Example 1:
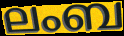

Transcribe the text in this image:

ലംബ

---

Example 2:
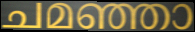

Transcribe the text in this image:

ചമഞ്ഞാ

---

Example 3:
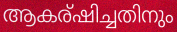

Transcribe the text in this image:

ആകര്ഷിച്ചതിനും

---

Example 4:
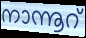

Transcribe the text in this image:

നാന്നൂറ്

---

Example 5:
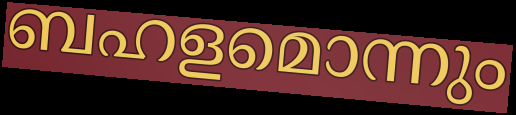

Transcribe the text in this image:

ബഹളമൊന്നും